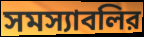
সমস্যাবলির